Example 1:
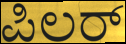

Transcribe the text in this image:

ಪಿಲರ್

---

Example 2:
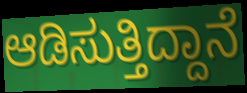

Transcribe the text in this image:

ಆಡಿಸುತ್ತಿದ್ದಾನೆ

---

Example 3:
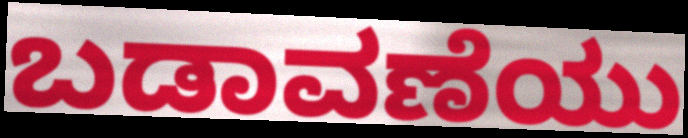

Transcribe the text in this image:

ಬಡಾವಣೆಯು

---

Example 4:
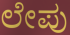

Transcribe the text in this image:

ಲೇಪು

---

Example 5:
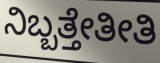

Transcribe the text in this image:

ನಿಬ್ಬತ್ತೇತೀತಿ